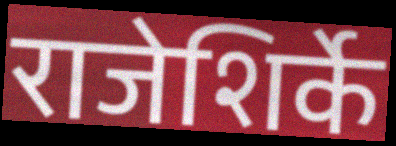
राजेशिर्के